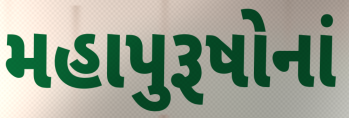
મહાપુરૂષોનાં